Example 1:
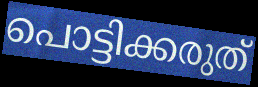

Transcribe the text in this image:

പൊട്ടിക്കരുത്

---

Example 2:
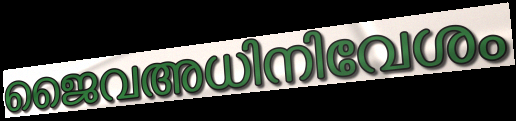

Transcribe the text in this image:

ജൈവഅധിനിവേശം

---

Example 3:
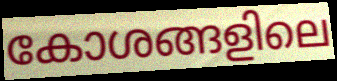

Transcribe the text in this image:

കോശങ്ങളിലെ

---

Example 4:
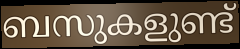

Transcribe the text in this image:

ബസുകളുണ്ട്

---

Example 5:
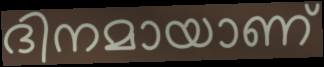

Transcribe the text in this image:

ദിനമായാണ്